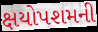
ક્ષયોપશમની